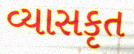
વ્યાસકૃત